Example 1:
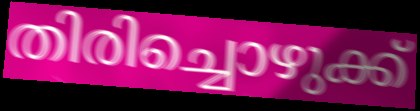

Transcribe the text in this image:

തിരിച്ചൊഴുക്ക്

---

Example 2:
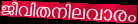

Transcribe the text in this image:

ജീവിതനിലവാരം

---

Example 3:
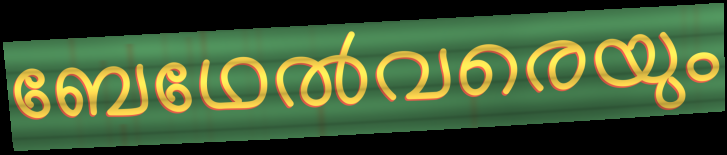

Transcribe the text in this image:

ബേഥേൽവരെയും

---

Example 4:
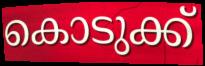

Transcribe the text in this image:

കൊടുക്ക്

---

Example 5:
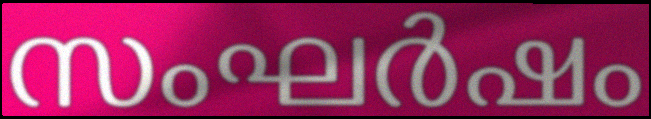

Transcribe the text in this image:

സംഘർഷം